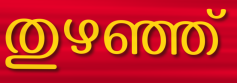
തുഴഞ്ഞ്